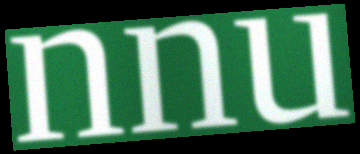
nnu